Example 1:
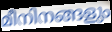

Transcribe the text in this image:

മീനിനങ്ങളും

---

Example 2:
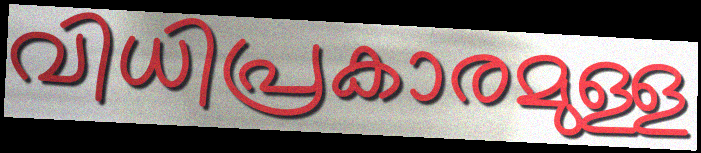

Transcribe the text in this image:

വിധിപ്രകാരമുള്ള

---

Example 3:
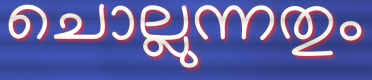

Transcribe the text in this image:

ചൊല്ലുന്നതും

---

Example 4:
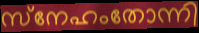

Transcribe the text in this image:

സ്‌നേഹംതോന്നി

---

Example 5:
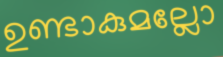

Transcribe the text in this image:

ഉണ്ടാകുമല്ലോ